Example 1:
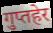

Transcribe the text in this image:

गुप्तहेर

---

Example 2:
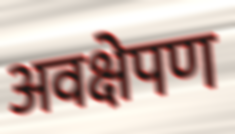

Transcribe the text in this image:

अवक्षेपण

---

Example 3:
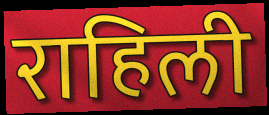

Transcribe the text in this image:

राहिली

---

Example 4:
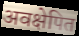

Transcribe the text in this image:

अवक्षेपित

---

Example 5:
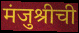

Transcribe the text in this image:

मंजुश्रीची